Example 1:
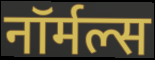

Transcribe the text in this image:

नॉर्मल्स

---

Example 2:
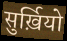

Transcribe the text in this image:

सुर्ख़ियो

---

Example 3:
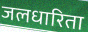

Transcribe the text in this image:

जलधारिता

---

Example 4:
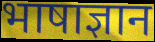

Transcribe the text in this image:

भाषाज्ञान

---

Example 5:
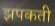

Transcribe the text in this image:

झपकती